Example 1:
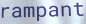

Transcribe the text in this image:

rampant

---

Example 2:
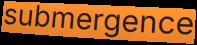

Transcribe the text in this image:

submergence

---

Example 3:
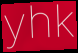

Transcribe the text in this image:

yhk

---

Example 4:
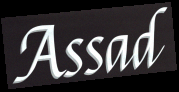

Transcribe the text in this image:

Assad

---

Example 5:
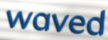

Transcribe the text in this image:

waved